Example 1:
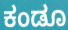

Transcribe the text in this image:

ಕಂಡೂ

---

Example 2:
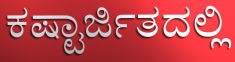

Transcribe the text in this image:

ಕಷ್ಟಾರ್ಜಿತದಲ್ಲಿ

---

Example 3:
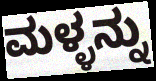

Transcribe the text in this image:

ಮಳ್ಳನ್ನು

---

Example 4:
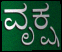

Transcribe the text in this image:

ವೃಕ್ಷ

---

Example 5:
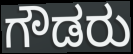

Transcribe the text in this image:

ಗೌಡರು